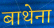
बाथेना